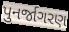
પુનર્જાગરણ